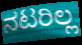
ನಟರಿಲ್ಲ